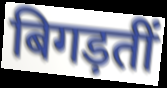
बिगड़तीं